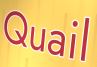
Quail